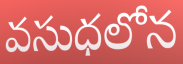
వసుధలోన